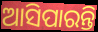
ଆସିପାରନ୍ତି